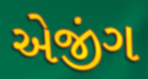
એજીંગ